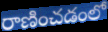
రాణించడంలో